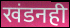
खंडनही